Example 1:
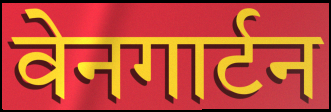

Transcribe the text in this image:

वेनगार्टन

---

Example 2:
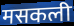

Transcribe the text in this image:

मसकली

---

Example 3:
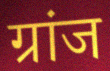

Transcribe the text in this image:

ग्रांज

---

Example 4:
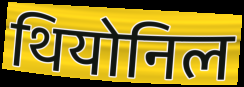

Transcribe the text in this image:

थियोनिल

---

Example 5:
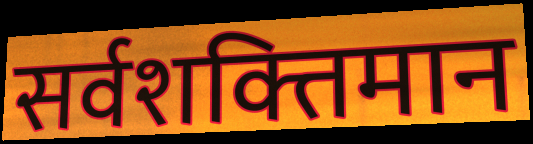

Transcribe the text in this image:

सर्वशक्तिमान